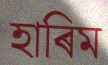
হাৰিম